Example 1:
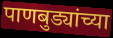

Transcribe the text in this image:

पाणबुड्यांच्या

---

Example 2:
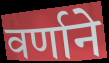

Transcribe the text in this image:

वर्णाने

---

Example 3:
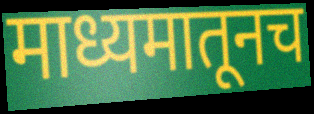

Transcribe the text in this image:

माध्यमातूनच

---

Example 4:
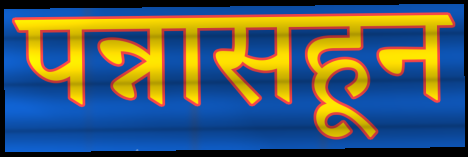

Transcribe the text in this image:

पन्नासहून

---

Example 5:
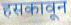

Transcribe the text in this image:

हसकावून